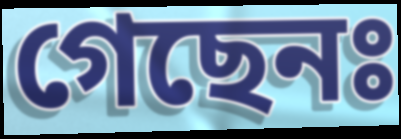
গেছেনঃ